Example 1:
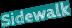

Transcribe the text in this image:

Sidewalk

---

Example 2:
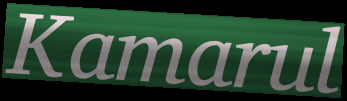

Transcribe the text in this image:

Kamarul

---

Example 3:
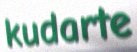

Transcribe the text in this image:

kudarte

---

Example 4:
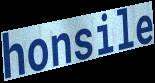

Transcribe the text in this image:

honsile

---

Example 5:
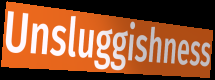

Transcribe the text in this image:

Unsluggishness